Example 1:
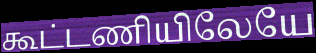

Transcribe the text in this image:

கூட்டணியிலேயே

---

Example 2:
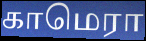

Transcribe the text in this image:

காமெரா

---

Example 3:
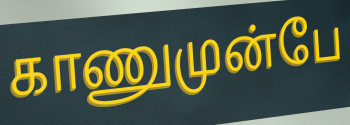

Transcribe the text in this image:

காணுமுன்பே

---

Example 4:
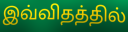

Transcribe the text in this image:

இவ்விதத்தில்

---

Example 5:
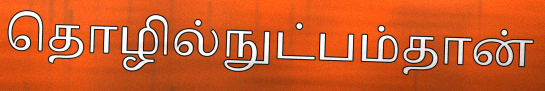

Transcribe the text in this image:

தொழில்நுட்பம்தான்